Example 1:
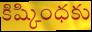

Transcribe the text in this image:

కిష్కింధకు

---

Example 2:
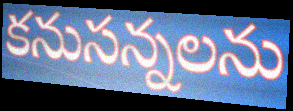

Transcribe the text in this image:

కనుసన్నలను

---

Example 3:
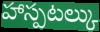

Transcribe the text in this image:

హాస్పటల్కు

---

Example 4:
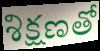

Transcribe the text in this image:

శిక్షణతో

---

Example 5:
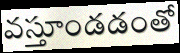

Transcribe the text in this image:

వస్తూండడంతో